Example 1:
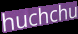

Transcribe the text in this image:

huchchu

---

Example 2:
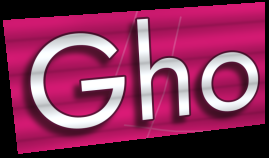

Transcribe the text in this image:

Gho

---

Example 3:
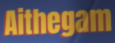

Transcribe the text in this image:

Aithegam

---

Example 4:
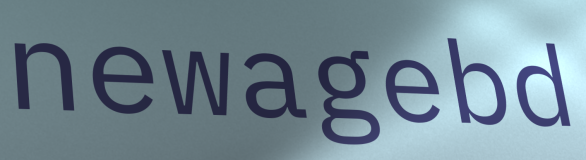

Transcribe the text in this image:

newagebd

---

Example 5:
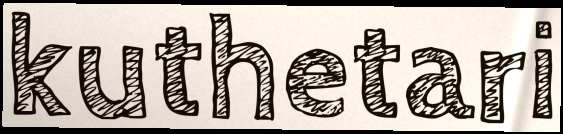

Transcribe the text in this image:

kuthetari